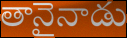
తానైనాడు